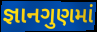
જ્ઞાનગુણમાં